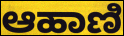
ಆಹಾಣಿ